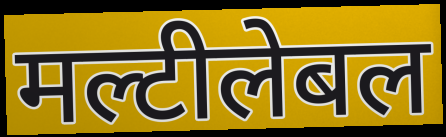
मल्टीलेबल